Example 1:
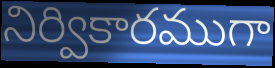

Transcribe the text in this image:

నిర్వికారముగా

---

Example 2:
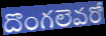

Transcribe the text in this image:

దొంగలెవరో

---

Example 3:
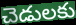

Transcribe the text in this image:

చెడులకు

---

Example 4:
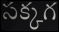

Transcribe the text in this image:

సక్కగ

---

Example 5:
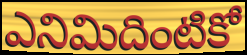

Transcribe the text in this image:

ఎనిమిదింటికో